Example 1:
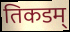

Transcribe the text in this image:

तिकडम्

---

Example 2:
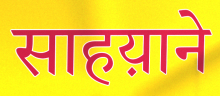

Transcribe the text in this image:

साहय़ाने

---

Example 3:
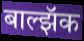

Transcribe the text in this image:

बाल्झॅक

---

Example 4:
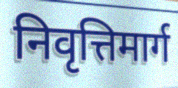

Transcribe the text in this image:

निवृत्तिमार्ग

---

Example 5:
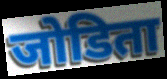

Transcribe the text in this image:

जोडिता